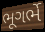
ભૂગર્ભે